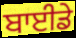
ਬਾਈਡੇ